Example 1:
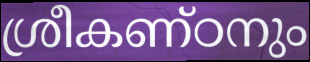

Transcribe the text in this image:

ശ്രീകണ്ഠനും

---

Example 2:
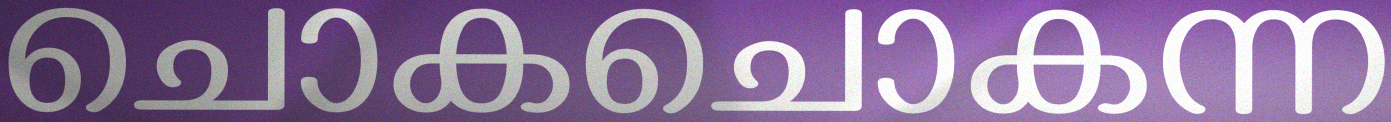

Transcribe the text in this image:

ചൊകചൊകന്ന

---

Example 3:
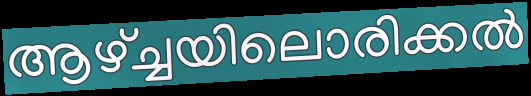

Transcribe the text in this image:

ആഴ്ച്ചയിലൊരിക്കൽ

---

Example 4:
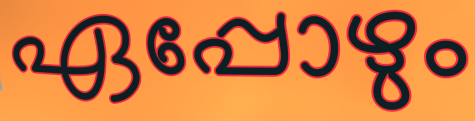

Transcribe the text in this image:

ഏപ്പോഴും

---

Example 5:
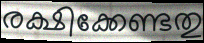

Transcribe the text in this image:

രക്ഷിക്കേണ്ടതു